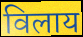
विलाय